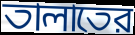
তালাতের